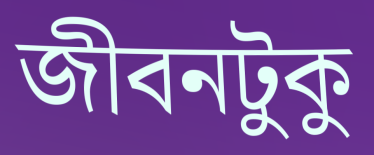
জীবনটুকু